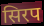
सिरप